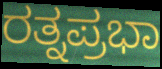
ರತ್ನಪ್ರಭಾ